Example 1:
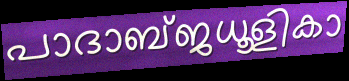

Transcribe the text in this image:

പാദാബ്ജധൂളികാ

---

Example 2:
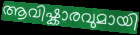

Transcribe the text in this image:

ആവിഷ്കാരവുമായി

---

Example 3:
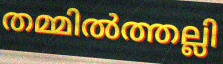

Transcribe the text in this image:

തമ്മിൽത്തല്ലി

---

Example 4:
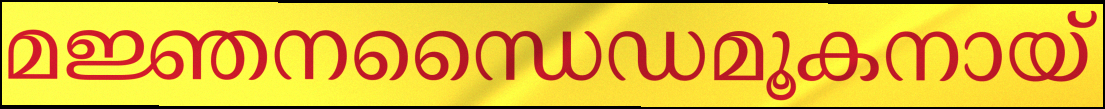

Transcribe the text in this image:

മജ്ഞനന്ധൈഡമൂകനായ്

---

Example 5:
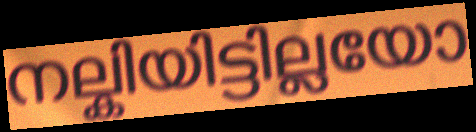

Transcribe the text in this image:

നല്കിയിട്ടില്ലയോ